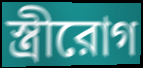
স্ত্রীরোগ